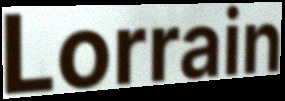
Lorrain